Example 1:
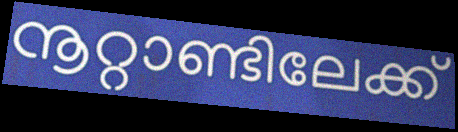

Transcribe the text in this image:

നൂറ്റാണ്ടിലേക്ക്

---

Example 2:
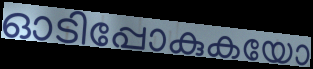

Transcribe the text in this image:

ഓടിപ്പോകുകയോ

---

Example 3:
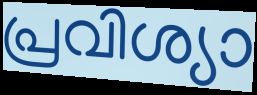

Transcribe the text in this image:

പ്രവിശ്യാ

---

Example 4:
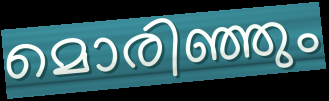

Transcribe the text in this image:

മൊരിഞ്ഞും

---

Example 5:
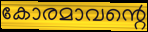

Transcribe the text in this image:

കോരമാവന്റെ